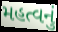
મહત્વનું